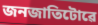
জনজাতিটোৱে